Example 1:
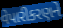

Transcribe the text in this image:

વેપારીકરણને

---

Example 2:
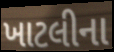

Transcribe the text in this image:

ખાટલીના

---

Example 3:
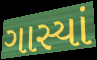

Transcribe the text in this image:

ગાસ્યાં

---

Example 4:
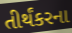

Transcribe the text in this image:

તીર્થંકરના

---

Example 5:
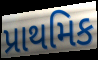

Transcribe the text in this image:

પ્રાથમિક